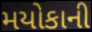
મયોકાની